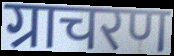
ग्राचरण